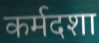
कर्मदशा